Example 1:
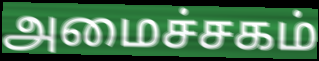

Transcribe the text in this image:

அமைச்சகம்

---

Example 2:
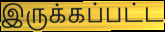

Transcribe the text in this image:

இருக்கப்பட்ட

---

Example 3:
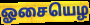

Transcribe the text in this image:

ஓசையெழ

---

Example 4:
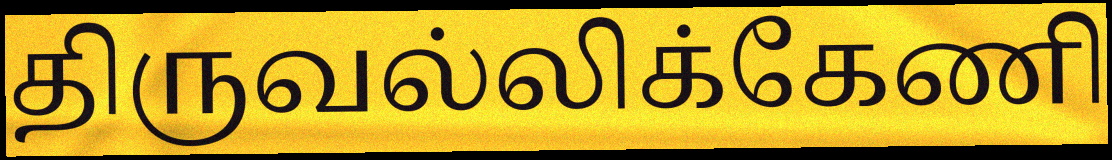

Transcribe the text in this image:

திருவல்லிக்கேணி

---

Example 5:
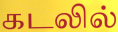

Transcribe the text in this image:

கடலில்